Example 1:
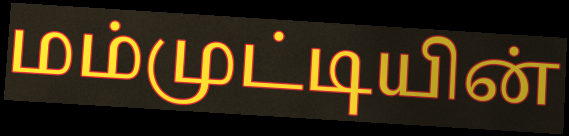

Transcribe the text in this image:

மம்முட்டியின்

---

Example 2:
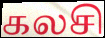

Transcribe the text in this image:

கலசி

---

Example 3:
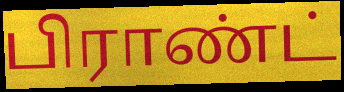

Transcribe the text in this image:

பிராண்ட்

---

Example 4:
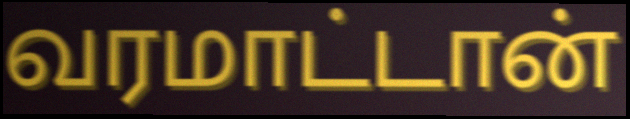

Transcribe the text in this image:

வரமாட்டான்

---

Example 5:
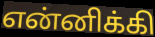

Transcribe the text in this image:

என்னிக்கி